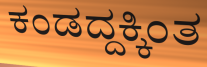
ಕಂಡದ್ದಕ್ಕಿಂತ